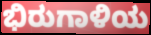
ಭಿರುಗಾಳಿಯ